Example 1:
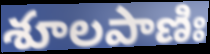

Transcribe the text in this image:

శూలపాణిః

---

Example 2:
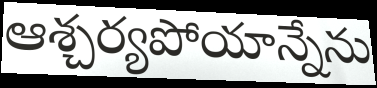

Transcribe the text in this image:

ఆశ్చర్యపోయాన్నేను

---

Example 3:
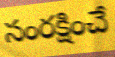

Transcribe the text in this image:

సంరక్షించే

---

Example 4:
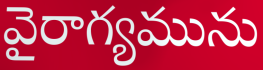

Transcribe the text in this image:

వైరాగ్యమును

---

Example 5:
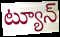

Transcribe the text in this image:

ట్యూన్